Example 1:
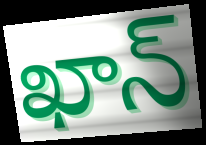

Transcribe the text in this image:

ఖాన్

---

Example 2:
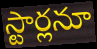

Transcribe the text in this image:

స్టార్లనూ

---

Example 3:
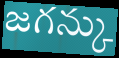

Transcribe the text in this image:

జగన్కు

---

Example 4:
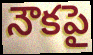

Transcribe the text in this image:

నౌకపై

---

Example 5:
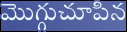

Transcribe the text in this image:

మొగ్గుచూపిన